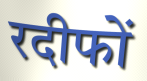
रदीफों